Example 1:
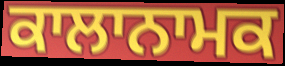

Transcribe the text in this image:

ਕਾਲਾਨਾਮਕ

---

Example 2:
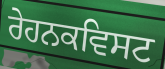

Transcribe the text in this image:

ਰੇਹਨਕਵਿਸਟ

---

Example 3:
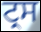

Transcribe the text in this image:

ਟ੍ਰਸ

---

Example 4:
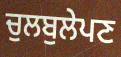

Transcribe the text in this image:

ਚੁਲਬੁਲੇਪਣ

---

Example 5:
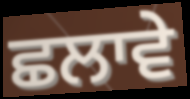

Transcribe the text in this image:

ਛਲਾਵੇ